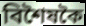
বিশৈষকৈ